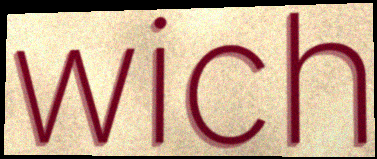
wich